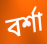
বর্শা